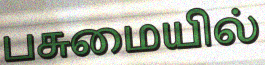
பசுமையில்